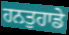
ਹਨਤੁਹਾਡੇ